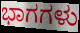
ಭಾಗಗಳು